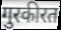
गुरकीरत